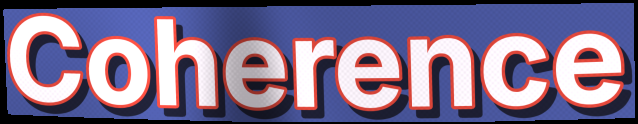
Coherence